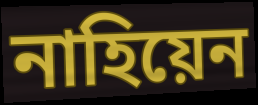
নাহিয়েন